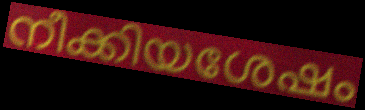
നീക്കിയശേഷം